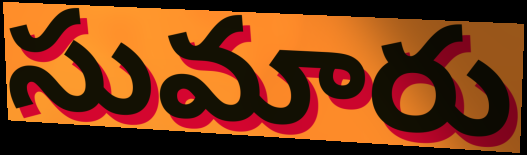
సుమారు